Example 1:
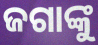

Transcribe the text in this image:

ଜଗାଙ୍କୁ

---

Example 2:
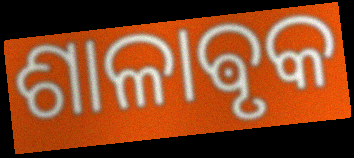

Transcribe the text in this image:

ଶାଳାଵୃକ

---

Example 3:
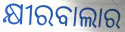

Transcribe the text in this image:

କ୍ଷୀରବାଲାର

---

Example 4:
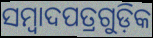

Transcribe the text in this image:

ସମ୍ୱାଦପତ୍ରଗୁଡ଼ିକ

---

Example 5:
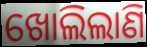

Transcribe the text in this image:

ଖୋଲିଲାଣି